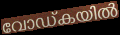
വോഡ്കയിൽ